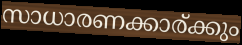
സാധാരണക്കാര്ക്കും